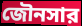
জৌনসার